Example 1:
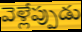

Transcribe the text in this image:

వెళ్లేప్పుడు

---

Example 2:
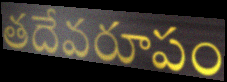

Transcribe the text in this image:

తదేవరూపం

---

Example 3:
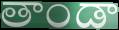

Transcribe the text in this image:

తాండా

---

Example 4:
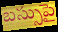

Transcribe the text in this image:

బస్సుపై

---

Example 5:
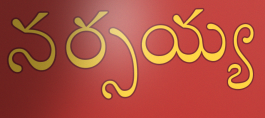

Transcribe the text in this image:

నర్సయ్య